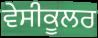
ਵੇਸੀਕੂਲਰ